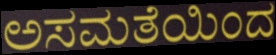
ಅಸಮತೆಯಿಂದ